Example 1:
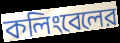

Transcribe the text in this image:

কলিংবেলের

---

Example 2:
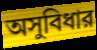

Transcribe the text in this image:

অসুবিধার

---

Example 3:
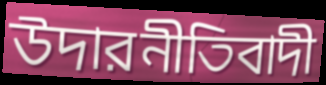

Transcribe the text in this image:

উদারনীতিবাদী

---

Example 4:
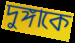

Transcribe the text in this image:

দুঙ্গাকে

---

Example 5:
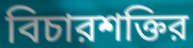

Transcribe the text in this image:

বিচারশক্তির